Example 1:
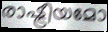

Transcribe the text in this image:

രാഷ്ട്രീയമോ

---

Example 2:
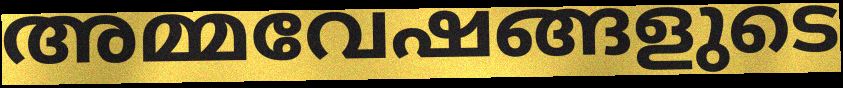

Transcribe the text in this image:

അമ്മവേഷങ്ങളുടെ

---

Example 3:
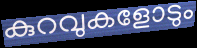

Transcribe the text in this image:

കുറവുകളോടും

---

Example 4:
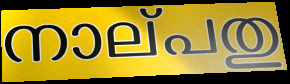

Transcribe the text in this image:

നാല്‌പതു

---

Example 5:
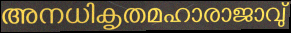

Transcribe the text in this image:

അനധികൃതമഹാരാജാവു്